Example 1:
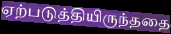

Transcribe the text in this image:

ஏற்படுத்தியிருந்ததை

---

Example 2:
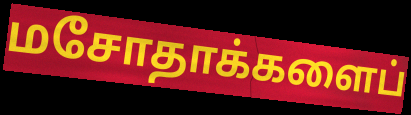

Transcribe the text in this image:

மசோதாக்களைப்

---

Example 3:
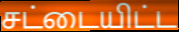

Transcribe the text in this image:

சட்டையிட்ட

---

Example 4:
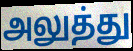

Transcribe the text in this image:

அலுத்து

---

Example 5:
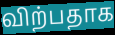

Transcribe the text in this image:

விற்பதாக